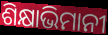
ଶିକ୍ଷାଭିମାନୀ